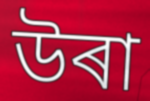
উৰা